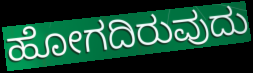
ಹೋಗದಿರುವುದು